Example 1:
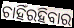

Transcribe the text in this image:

ଚାହିଁରହିବାର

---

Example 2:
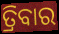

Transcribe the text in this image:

ତ୍ରିବାର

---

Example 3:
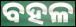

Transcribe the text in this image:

ବହଳ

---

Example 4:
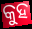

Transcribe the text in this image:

କୁହ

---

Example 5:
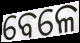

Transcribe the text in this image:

ବେଳେ